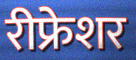
रीफ्रेशर